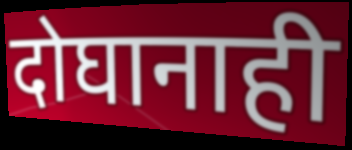
दोघानाही